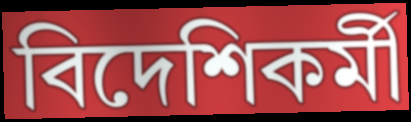
বিদেশিকর্মী